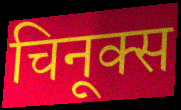
चिनूक्स